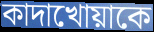
কাদাখোয়াকে